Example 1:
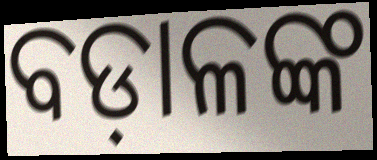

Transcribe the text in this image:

ବଡ଼ାଳଙ୍କ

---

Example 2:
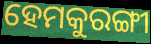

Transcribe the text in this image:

ହେମକୁରଙ୍ଗୀ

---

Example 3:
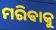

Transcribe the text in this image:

ମରିଵାକୁ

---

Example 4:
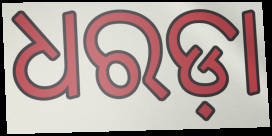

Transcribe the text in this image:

ଧରଡ଼ା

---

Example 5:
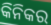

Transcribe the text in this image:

କିନିକର